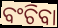
ବଂଚିବା